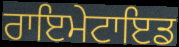
ਰਾਇਮੇਟਾਇਡ